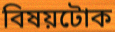
বিষয়টোক